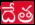
దేత